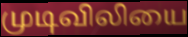
முடிவிலியை